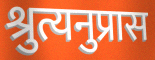
श्रुत्यनुप्रास